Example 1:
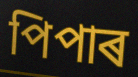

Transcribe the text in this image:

পিপাৰ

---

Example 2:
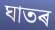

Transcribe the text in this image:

ঘাতৰ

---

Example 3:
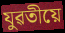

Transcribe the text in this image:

যুৱতীয়ে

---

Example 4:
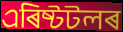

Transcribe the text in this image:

এৰিষ্টটলৰ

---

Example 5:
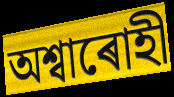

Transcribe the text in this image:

অশ্বাৰোহী